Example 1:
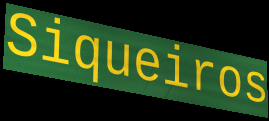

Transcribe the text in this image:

Siqueiros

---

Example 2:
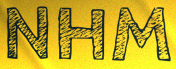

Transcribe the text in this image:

NHM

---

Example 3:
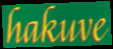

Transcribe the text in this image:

hakuve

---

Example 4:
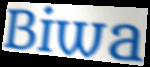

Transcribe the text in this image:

Biwa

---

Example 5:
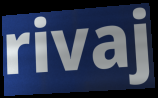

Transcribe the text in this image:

rivaj